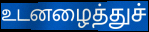
உடனழைத்துச்